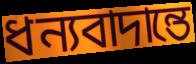
ধন্যবাদান্তে